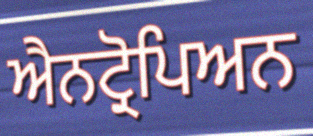
ਐਨਟ੍ਰੋਪਿਅਨ